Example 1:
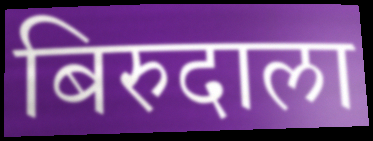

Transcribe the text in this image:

बिरुदाला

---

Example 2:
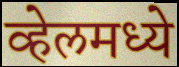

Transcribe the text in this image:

व्हेलमध्ये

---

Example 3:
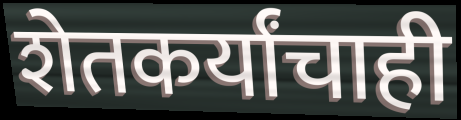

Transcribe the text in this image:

शेतकर्यांचाही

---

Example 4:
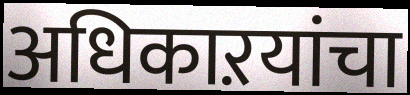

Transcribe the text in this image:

अधिकाऱयांचा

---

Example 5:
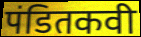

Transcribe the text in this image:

पंडितकवी